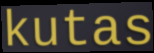
kutas